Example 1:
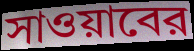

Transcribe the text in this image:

সাওয়াবের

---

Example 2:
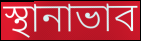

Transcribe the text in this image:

স্থানাভাব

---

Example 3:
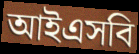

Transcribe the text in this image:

আইএসবি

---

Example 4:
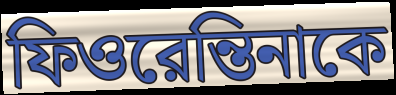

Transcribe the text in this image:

ফিওরেন্তিনাকে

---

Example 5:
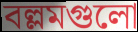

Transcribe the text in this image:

বল্লমগুলো